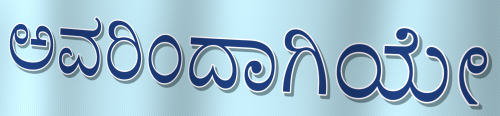
ಅವರಿಂದಾಗಿಯೇ